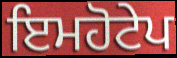
ਇਮਹੋਟੇਪ